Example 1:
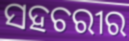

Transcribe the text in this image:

ସହଚରୀର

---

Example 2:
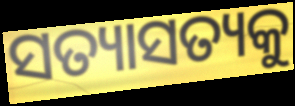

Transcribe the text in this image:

ସତ୍ୟାସତ୍ୟକୁ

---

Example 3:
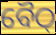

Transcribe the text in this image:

ବୈଠ୍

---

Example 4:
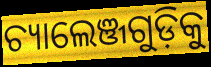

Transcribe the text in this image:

ଚ୍ୟାଲେଞ୍ଜଗୁଡ଼ିକୁ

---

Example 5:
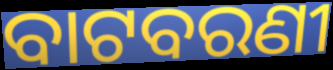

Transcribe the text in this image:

ବାଟବରଣୀ